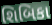
શિબિકા